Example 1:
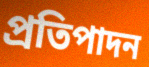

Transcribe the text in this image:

প্রতিপাদন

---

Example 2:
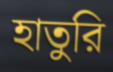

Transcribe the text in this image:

হাতুরি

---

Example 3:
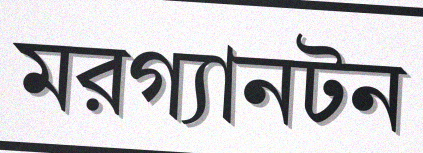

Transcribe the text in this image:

মরগ্যানটন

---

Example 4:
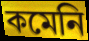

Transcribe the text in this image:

কমেনি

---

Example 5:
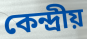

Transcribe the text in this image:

কেন্দ্রীয়